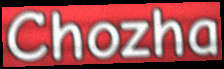
Chozha